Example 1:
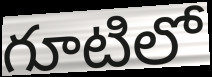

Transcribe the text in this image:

గూటిలో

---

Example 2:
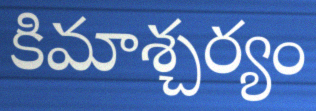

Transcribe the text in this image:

కిమాశ్చర్యం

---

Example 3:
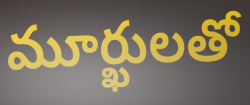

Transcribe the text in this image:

మూర్ఖులతో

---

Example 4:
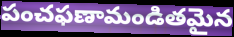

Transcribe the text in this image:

పంచఫణామండితమైన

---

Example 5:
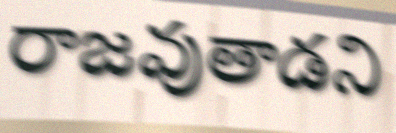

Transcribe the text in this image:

రాజవుతాడని